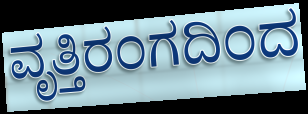
ವೃತ್ತಿರಂಗದಿಂದ